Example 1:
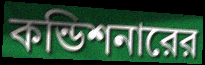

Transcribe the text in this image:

কন্ডিশনারের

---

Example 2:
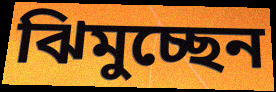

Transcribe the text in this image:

ঝিমুচ্ছেন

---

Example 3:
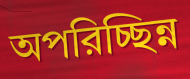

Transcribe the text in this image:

অপরিচ্ছিন্ন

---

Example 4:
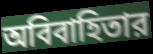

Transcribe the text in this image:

অবিবাহিতার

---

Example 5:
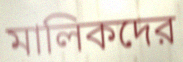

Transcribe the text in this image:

মালিকদের